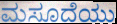
ಮಸೂದೆಯು